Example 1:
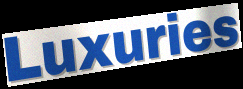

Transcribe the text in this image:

Luxuries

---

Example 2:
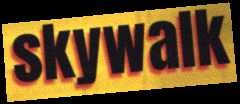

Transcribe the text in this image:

skywalk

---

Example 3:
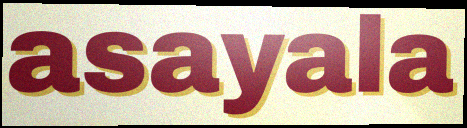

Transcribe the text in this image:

asayala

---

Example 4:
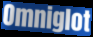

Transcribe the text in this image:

Omniglot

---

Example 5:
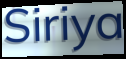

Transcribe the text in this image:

Siriya